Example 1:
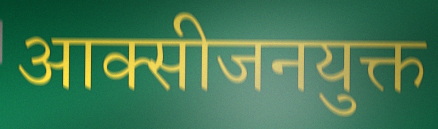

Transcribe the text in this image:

आक्सीजनयुक्त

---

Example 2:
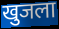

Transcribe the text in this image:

खुजला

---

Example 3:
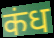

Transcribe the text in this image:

कंध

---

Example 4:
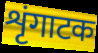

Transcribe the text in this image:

शृंगाटक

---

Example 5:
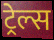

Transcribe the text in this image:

ट्रेल्स